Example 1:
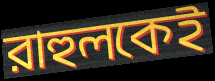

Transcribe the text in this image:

রাহুলকেই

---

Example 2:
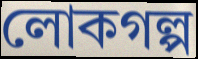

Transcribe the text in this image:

লোকগল্প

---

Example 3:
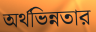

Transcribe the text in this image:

অর্থভিন্নতার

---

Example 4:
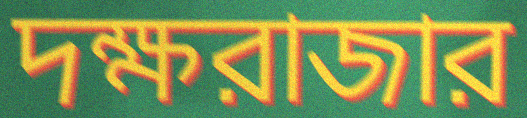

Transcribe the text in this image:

দক্ষরাজার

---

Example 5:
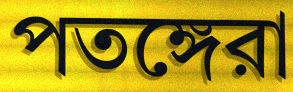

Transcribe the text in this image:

পতঙ্গেরা